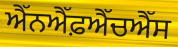
ਐੱਨਐੱਫ਼ਐੱਚਐੱਸ